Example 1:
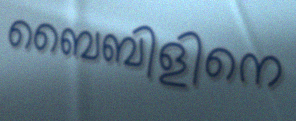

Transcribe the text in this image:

ബൈബിളിനെ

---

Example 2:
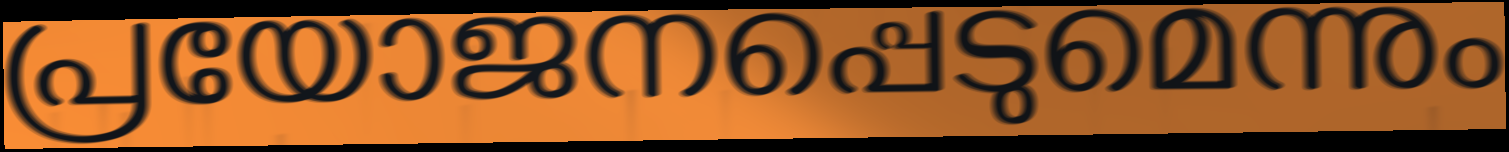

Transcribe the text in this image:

പ്രയോജനപ്പെടുമെന്നും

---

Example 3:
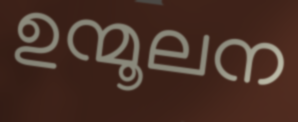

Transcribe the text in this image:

ഉന്മൂലന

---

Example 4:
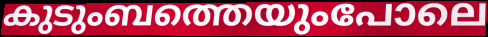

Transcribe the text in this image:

കുടുംബത്തെയുംപോലെ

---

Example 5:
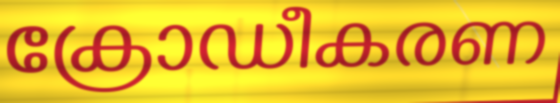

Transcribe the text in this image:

ക്രോഡീകരണ